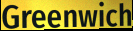
Greenwich